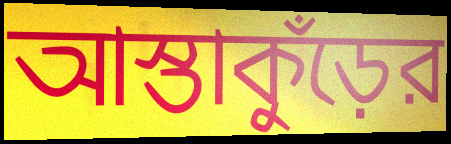
আস্তাকুঁড়ের